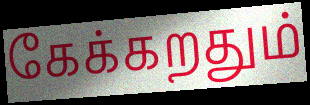
கேக்கறதும்